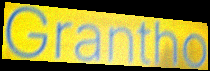
Grantho